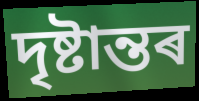
দৃষ্টান্তৰ